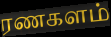
ரணகளம்